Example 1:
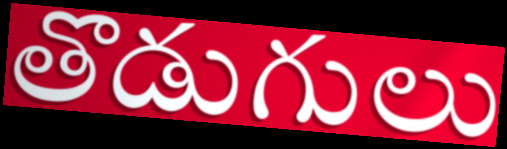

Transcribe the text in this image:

తొడుగులు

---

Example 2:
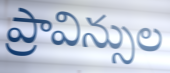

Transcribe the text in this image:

ప్రావిన్సుల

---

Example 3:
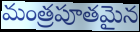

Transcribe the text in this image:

మంత్రపూతమైన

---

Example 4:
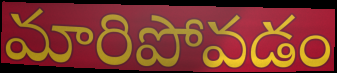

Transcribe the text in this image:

మారిపోవడం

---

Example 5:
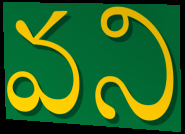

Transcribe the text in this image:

వని